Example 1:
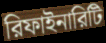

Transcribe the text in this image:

রিফাইনারিটি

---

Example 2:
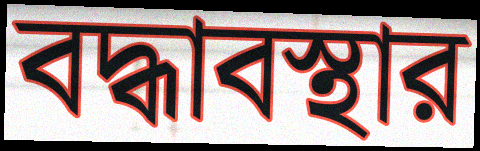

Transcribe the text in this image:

বদ্ধাবস্থার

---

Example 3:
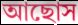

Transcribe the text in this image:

আছোস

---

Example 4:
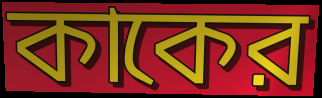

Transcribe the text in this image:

কাকের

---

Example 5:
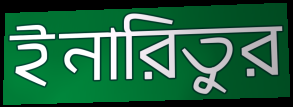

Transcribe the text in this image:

ইনারিতুর